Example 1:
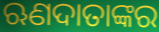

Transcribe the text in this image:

ଋଣଦାତାଙ୍କର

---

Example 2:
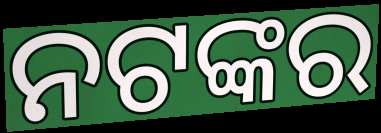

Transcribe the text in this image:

ନଟଙ୍କର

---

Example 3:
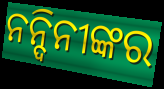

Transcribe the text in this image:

ନନ୍ଦିନୀଙ୍କର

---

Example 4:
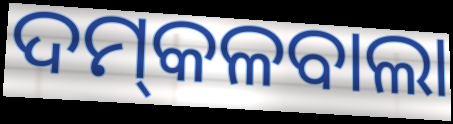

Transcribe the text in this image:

ଦମ୍‍କଳବାଲା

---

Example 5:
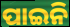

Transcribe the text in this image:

ପାଇନି